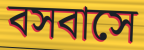
বসবাসে